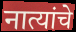
नात्यांचे